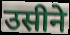
उसीने